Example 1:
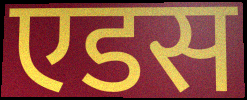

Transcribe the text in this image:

एडस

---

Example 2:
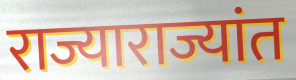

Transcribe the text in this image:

राज्याराज्यांत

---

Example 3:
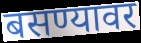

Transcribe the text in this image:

बसण्यावर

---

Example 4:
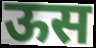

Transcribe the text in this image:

ऊस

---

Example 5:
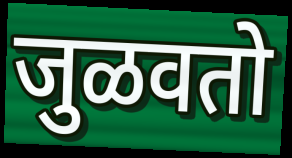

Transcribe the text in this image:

जुळवतो